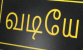
வடியே